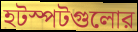
হটস্পটগুলোর